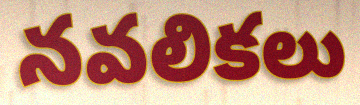
నవలికలు